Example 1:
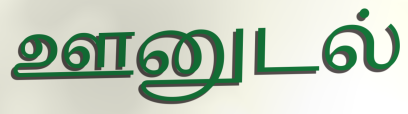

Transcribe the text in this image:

ஊனுடல்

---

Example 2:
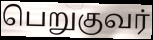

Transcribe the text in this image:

பெறுகுவர்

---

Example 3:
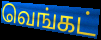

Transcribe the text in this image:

வெங்கட்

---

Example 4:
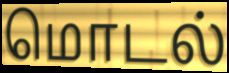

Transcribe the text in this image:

மொடல்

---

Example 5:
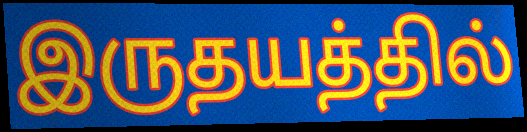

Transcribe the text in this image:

இருதயத்தில்